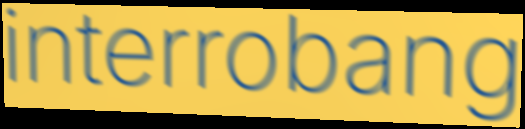
interrobang